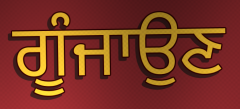
ਗੂੰਜਾਉਣ